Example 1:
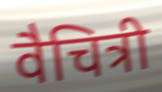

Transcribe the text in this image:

वैचित्री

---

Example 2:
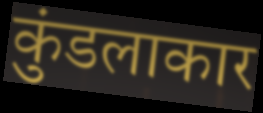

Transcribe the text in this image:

कुंडलाकार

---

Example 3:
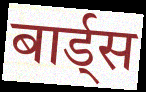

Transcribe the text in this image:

बार्ड्स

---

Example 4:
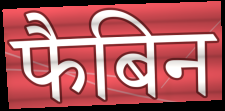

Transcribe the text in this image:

फैबिन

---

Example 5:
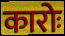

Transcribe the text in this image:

कारोः